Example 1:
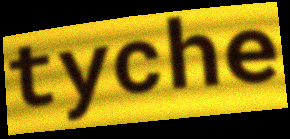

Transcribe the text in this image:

tyche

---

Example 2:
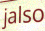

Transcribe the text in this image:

jalso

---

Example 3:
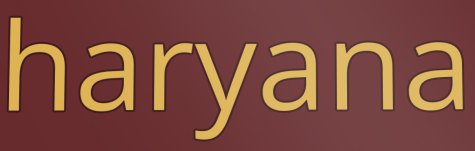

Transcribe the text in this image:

haryana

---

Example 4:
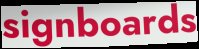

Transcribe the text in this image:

signboards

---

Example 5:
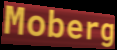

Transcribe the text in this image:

Moberg